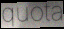
quota